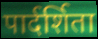
पार्दर्शिता